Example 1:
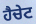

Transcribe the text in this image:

ਹੈਚੇਟ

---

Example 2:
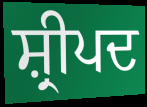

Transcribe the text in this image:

ਸ਼੍ਰੀਪਦ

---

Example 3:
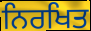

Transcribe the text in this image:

ਨਿਰਖਿਤ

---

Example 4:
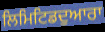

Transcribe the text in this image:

ਲਿਮਿਟਿਡਦੁਆਰਾ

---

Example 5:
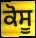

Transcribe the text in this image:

ਕੋਸੂ